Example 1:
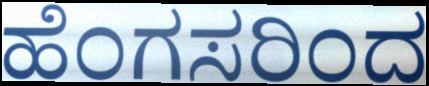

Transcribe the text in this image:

ಹೆಂಗಸರಿಂದ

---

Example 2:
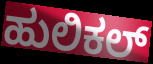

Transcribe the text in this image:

ಹುಲಿಕಲ್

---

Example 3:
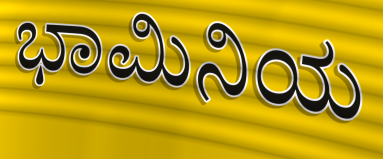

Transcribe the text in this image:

ಭಾಮಿನಿಯ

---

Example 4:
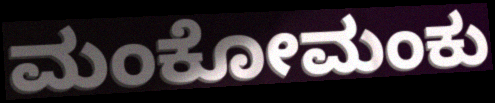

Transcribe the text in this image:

ಮಂಕೋಮಂಕು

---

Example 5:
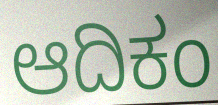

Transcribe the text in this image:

ಆದಿಕಂ